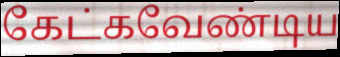
கேட்கவேண்டிய